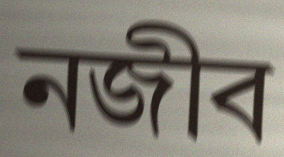
নজীব